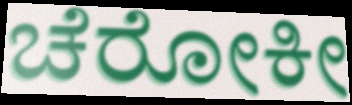
ಚೆರೋಕೀ